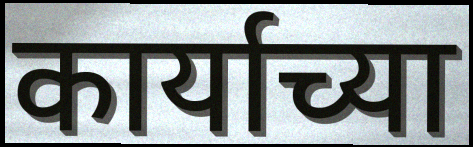
कार्याच्या